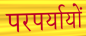
परपर्यायों